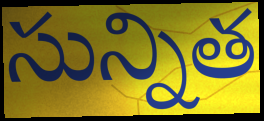
సున్నిత